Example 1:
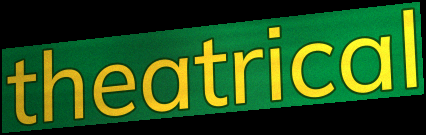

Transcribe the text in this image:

theatrical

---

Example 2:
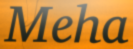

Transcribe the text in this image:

Meha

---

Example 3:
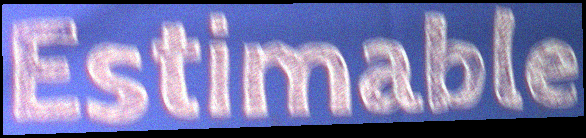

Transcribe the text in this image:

Estimable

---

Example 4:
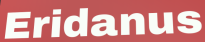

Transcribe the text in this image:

Eridanus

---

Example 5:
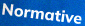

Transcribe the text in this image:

Normative